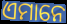
ଏମାନେ